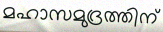
മഹാസമുദ്രത്തിന്